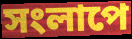
সংলাপে